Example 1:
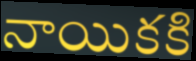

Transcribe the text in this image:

నాయికకి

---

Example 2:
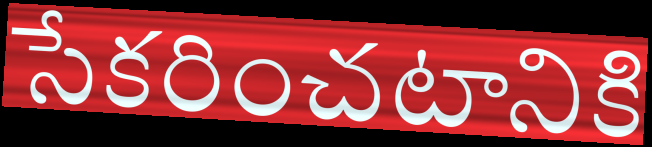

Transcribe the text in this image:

సేకరించటానికి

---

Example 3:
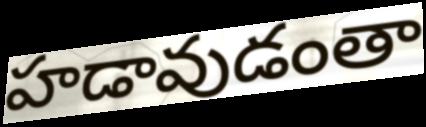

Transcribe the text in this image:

హడావుడంతా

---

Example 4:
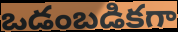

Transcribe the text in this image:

ఒడంబడికగా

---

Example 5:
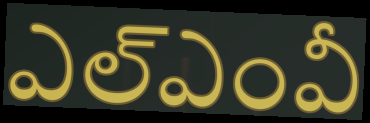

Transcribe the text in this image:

ఎల్ఎంవీ